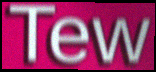
Tew